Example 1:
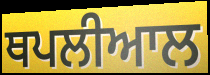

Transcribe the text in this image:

ਥਪਲੀਆਲ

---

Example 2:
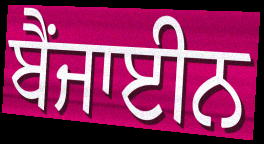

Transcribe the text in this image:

ਬੈਂਜਾਈਨ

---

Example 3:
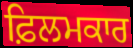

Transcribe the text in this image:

ਫ਼ਿਲਮਕਾਰ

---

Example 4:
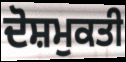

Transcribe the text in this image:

ਦੋਸ਼ਮੁਕਤੀ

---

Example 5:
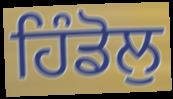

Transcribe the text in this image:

ਹਿੰਡੋਲੁ